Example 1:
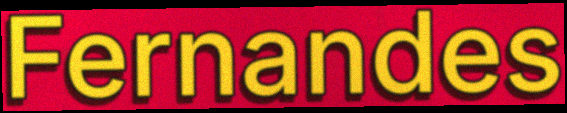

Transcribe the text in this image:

Fernandes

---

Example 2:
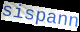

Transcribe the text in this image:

sispann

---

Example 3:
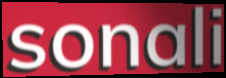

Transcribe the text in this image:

sonali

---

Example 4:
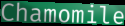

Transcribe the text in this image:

Chamomile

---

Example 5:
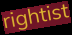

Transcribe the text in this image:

rightist